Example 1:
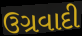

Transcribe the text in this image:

ઉગ્રવાદી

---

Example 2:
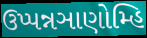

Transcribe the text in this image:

ઉપ્પન્નઞાણોમ્હિ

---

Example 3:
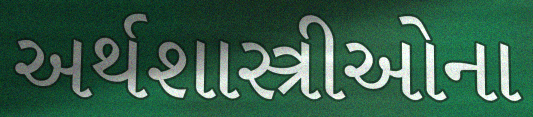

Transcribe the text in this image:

અર્થશાસ્ત્રીઓના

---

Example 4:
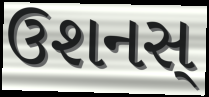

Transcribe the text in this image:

ઉશનસ્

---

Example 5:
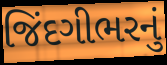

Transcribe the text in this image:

જિંદગીભરનું